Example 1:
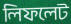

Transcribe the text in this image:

লিফলেট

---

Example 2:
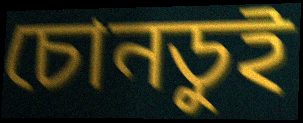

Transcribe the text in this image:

চোনডুই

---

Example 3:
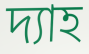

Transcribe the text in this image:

দ্যাহ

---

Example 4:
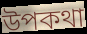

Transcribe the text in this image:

উপকথা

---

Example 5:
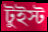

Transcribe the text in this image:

টুইস্ট